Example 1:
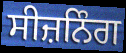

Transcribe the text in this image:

ਸੀਜ਼ਨਿੰਗ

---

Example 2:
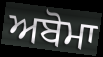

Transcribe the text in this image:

ਅਬੋਮਾ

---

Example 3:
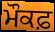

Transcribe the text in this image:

ਮੌਕਫ਼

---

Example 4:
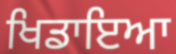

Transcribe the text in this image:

ਖਿਡਾਇਆ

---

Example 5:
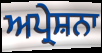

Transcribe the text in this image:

ਅਪ੍ਰੇਸ਼ਨਾ